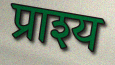
प्राश्य